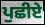
ਪੁਛੀਏ